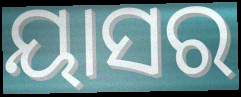
ୟାସର